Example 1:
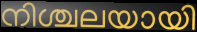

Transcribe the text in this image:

നിശ്ചലയായി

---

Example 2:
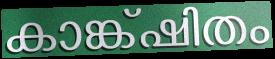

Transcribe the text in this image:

കാങ്ക്ഷിതം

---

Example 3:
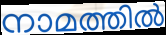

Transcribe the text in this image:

നാമത്തിൽ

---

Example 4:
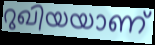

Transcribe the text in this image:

റുഖിയയാണ്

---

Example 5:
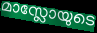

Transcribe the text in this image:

മാസ്ലോയുടെ